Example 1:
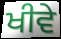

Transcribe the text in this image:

ਖੀਵੇ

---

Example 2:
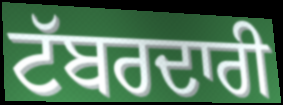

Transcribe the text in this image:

ਟੱਬਰਦਾਰੀ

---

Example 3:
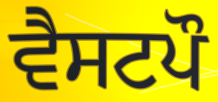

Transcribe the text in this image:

ਵੈਸਟਪੌ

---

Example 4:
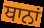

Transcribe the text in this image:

ਥਾਨਾਂ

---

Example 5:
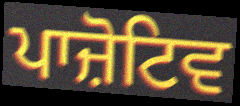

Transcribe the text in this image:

ਪਾਜ਼ੋਟਿਵ